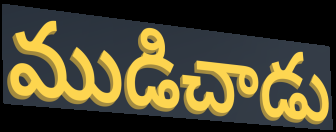
ముడిచాడు